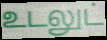
உடலுட்